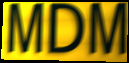
MDM